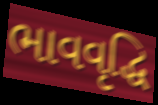
ભાવવૃદ્ધિ